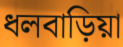
ধলবাড়িয়া